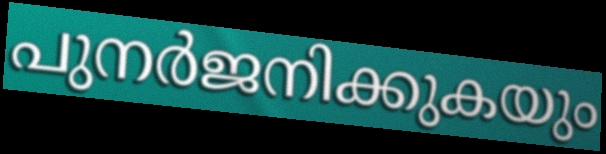
പുനർജനിക്കുകയും